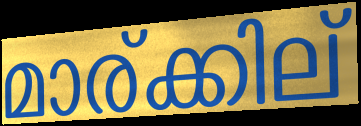
മാര്ക്കില്